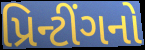
પ્રિન્ટીંગનો